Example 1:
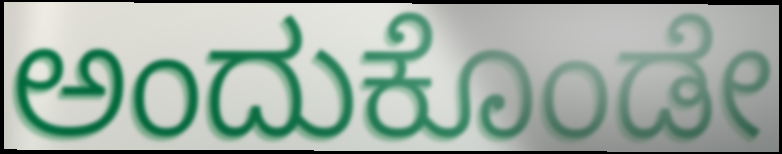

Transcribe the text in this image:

ಅಂದುಕೊಂಡೇ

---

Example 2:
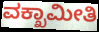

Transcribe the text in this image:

ವಕ್ಖಾಮೀತಿ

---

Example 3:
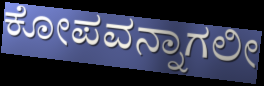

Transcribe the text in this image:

ಕೋಪವನ್ನಾಗಲೀ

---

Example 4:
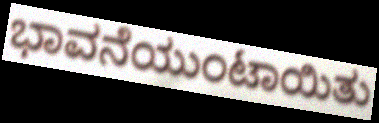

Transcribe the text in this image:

ಭಾವನೆಯುಂಟಾಯಿತು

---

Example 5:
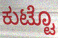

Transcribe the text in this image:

ಕುಟ್ಟೊ